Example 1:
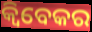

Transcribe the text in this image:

କ୍ୱିବେକର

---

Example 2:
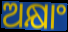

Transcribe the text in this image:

ଅକ୍ଷାଂ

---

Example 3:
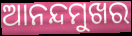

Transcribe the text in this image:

ଆନନ୍ଦମୁଖର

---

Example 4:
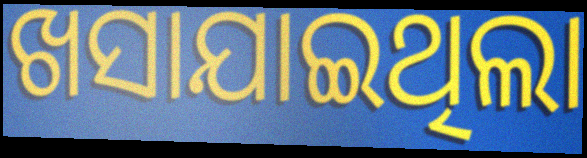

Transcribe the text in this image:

ଖସାଯାଇଥିଲା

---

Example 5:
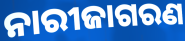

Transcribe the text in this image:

ନାରୀଜାଗରଣ